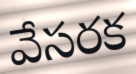
వేసరక